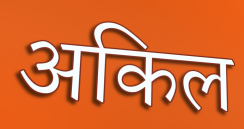
अकिल